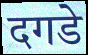
दगडे